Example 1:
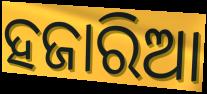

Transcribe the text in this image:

ହଜାରିଆ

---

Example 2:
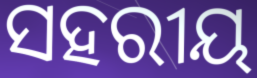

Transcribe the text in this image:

ସହରୀୟ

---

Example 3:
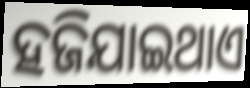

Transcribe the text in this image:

ହଜିଯାଇଥାଏ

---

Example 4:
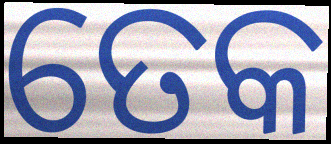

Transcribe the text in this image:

ତେକ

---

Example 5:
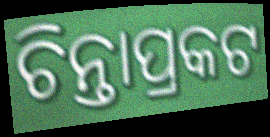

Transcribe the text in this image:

ଚିନ୍ତାପ୍ରକଟ